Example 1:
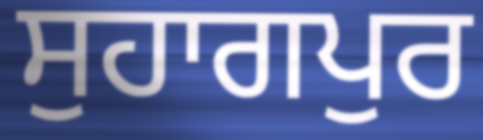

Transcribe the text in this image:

ਸੁਹਾਗਪੁਰ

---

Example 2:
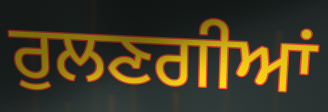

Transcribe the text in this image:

ਰੁਲਣਗੀਆਂ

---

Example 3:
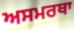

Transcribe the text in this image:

ਅਸਮਰਥਾ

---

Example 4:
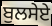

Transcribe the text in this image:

ਬੁਲਸੇਏ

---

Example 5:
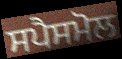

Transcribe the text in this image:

ਸਪੈਸਮੋਲ